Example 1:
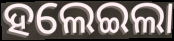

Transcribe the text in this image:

ହଲେଇଲା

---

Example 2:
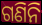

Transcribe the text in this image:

ଗଣିନି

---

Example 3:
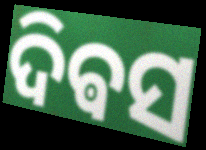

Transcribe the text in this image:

ଦିଵସ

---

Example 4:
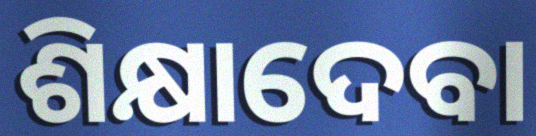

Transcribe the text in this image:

ଶିକ୍ଷାଦେବା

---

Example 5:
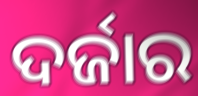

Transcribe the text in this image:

ଦର୍ଜାର